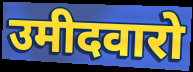
उमीदवारो